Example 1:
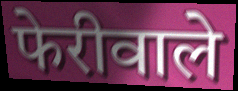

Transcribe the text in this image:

फेरीवाले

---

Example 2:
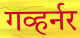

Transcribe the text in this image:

गव्हर्नर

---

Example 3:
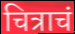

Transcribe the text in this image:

चित्राचं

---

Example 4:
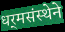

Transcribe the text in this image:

धर्मसंस्थेने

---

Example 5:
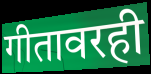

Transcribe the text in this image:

गीतावरही